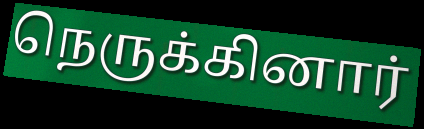
நெருக்கினார்